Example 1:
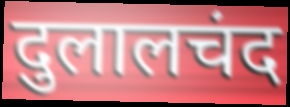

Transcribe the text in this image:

दुलालचंद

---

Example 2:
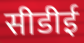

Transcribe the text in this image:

सीडीई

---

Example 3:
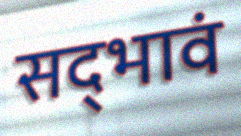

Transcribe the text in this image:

सद्भावं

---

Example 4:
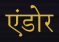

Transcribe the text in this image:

एंडोर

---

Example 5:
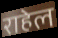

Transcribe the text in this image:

राहेल